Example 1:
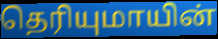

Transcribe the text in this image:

தெரியுமாயின்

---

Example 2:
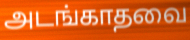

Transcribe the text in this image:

அடங்காதவை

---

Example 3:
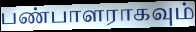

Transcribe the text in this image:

பண்பாளராகவும்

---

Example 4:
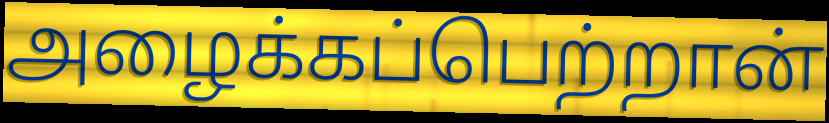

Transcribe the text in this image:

அழைக்கப்பெற்றான்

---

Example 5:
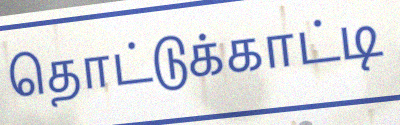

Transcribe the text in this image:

தொட்டுக்காட்டி